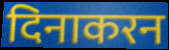
दिनाकरन